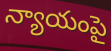
న్యాయంపై